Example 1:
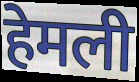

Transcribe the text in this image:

हेमली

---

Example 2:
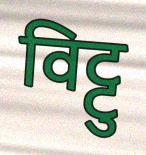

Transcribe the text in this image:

विट्टु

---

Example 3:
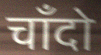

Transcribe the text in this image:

चाँदो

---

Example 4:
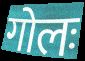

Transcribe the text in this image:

गोलः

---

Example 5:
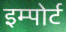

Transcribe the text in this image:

इम्पोर्ट